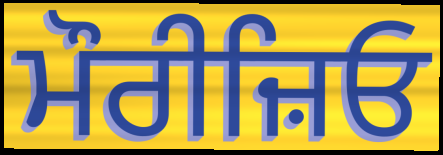
ਮੌਰੀਜ਼ਿਓ